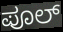
ಪೂಲ್